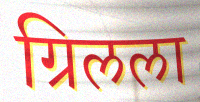
ग्रिलला